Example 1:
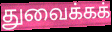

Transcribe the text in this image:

துவைக்கக்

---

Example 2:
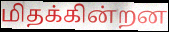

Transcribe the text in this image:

மிதக்கின்றன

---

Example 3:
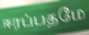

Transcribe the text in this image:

ஈரப்பதமே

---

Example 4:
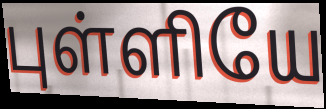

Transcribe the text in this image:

புள்ளியே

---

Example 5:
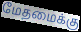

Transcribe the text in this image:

மேதமைக்கு